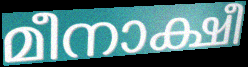
മീനാക്ഷീ